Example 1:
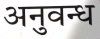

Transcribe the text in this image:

अनुवन्ध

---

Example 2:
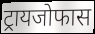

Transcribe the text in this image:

ट्रायजोफास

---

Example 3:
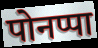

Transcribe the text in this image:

पोनप्‍पा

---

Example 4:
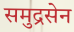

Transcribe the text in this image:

समुद्रसेन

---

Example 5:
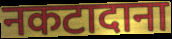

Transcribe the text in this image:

नकटादाना